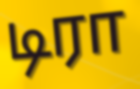
டிரா